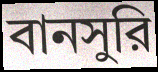
বানসুরি